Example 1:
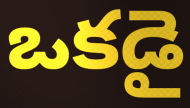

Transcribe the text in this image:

ఒకడై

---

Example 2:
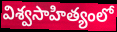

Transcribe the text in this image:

విశ్వసాహిత్యంలో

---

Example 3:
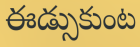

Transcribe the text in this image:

ఈడ్సుకుంట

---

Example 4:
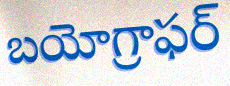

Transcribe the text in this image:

బయోగ్రాఫర్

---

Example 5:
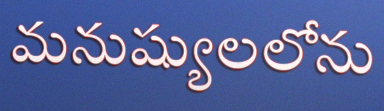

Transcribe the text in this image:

మనుష్యులలోను